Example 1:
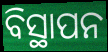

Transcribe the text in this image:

ବିସ୍ଥାପନ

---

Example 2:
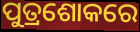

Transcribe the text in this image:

ପୁତ୍ରଶୋକରେ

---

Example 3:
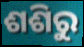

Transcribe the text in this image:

ଶଶିରୁ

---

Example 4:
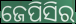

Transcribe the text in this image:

ଜେପିସିର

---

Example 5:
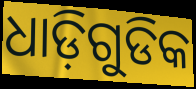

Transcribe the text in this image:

ଧାଡ଼ିଗୁଡିକ